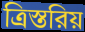
ত্রিস্তরিয়